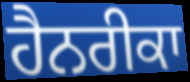
ਹੈਨਰੀਕਾ